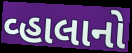
વ્હાલાનો